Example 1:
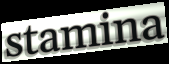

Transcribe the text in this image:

stamina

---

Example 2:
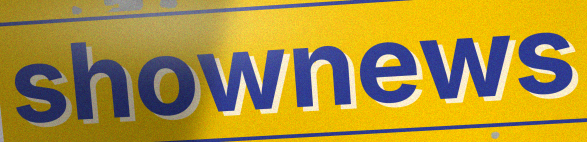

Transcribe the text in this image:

shownews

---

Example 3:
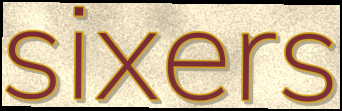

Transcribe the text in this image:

sixers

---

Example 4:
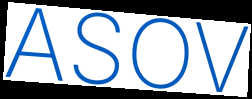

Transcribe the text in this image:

ASOV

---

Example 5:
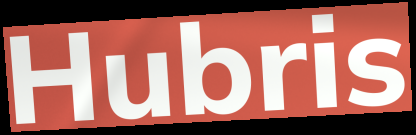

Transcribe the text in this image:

Hubris